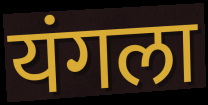
यंगला